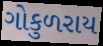
ગોકુળરાય